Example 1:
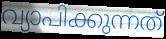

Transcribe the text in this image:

വ്യാപിക്കുന്നത്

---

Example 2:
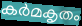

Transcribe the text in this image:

കർമകൃതം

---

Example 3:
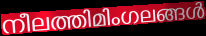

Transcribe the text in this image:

നീലത്തിമിംഗലങ്ങൾ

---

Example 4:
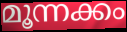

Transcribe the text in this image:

മൂന്നക്കം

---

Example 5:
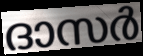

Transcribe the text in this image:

ദാസർ